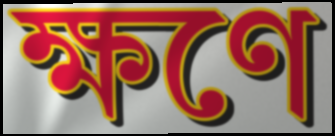
ক্ষণে